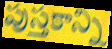
పుస్తకాన్ని